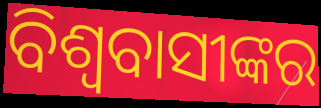
ବିଶ୍ୱବାସୀଙ୍କର